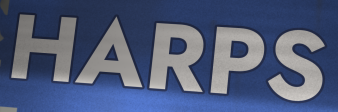
HARPS